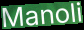
Manoli